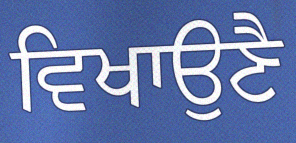
ਵਿਖਾਉਣੈ